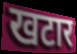
खटार